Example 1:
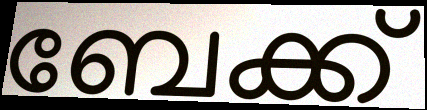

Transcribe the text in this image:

ബേക്ക്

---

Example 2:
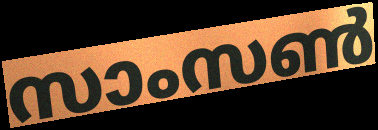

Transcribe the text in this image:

സാംസൺ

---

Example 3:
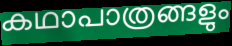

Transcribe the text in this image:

കഥാപാത്രങ്ങളും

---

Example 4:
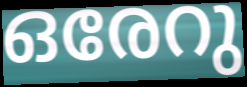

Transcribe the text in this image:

ഒരേറു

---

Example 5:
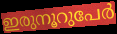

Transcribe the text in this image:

ഇരുനൂറുപേർ